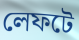
লেফটে